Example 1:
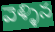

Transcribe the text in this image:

వెళ్ళిన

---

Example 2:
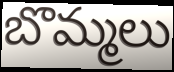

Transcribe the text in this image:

బొమ్మలు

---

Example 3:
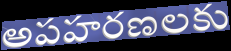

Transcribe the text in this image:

అపహరణలకు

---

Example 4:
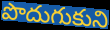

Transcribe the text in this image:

పొదుగుకుని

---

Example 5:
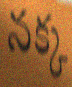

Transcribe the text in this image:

నక్క